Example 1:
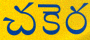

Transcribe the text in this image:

చకెర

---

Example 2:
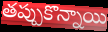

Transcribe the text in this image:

తప్పుకొన్నాయి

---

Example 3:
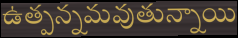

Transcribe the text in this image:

ఉత్పన్నమవుతున్నాయి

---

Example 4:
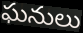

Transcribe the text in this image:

ఘనులు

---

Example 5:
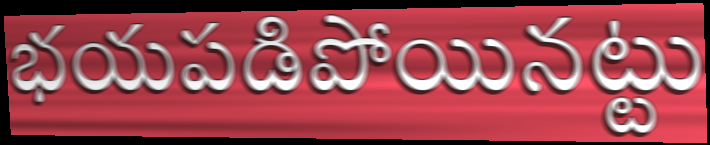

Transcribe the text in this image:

భయపడిపోయినట్టు